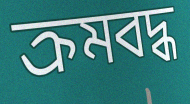
ক্ৰমবদ্ধ